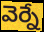
వెర్నే